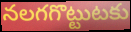
నలగగొట్టుటకు